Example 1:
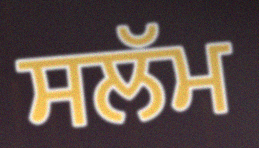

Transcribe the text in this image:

ਸਲੱਮ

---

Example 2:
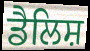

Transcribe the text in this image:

ਡੈਲਿਸ਼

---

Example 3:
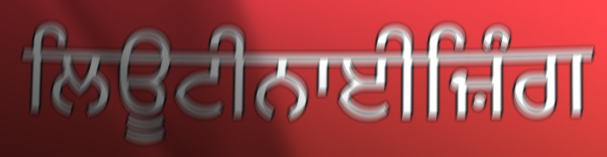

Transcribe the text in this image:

ਲਿਊਟੀਨਾਈਜ਼ਿੰਗ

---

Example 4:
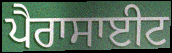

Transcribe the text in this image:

ਪੈਰਾਸਾਈਟ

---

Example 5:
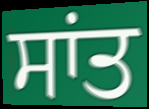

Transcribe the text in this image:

ਸਾਂਤ